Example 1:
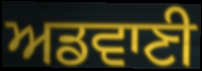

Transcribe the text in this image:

ਅਡਵਾਣੀ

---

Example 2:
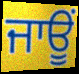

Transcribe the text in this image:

ਜਾਊਂ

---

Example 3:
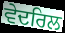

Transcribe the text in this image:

ਵੇਦਰਿਲ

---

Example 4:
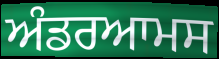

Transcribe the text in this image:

ਅੰਡਰਆਮਸ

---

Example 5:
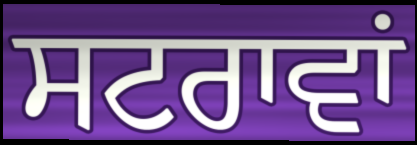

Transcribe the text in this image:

ਸਟਰਾਵਾਂ